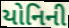
યોનિની